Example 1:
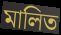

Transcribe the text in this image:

মালিত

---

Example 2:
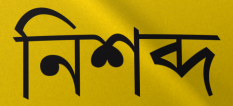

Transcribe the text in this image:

নিশব্দ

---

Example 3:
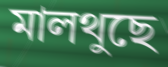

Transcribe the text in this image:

মালথুছে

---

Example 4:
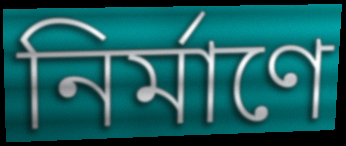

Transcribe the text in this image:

নিৰ্মাণে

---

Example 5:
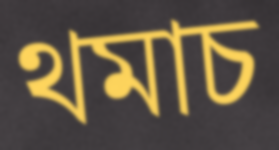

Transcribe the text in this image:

থমাচ